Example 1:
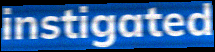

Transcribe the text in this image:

instigated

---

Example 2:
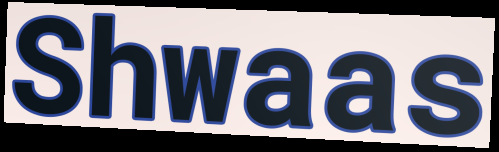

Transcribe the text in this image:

Shwaas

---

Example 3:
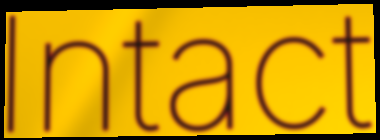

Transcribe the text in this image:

Intact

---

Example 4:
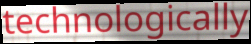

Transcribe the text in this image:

technologically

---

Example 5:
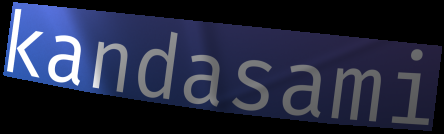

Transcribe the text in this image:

kandasami